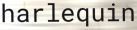
harlequin